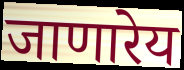
जाणारेय